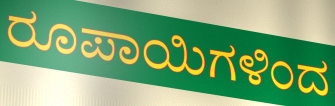
ರೂಪಾಯಿಗಳಿಂದ